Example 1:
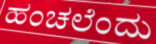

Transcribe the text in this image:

ಹಂಚಲೆಂದು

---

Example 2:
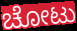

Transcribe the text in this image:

ಚೋಟು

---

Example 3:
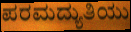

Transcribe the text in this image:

ಪರಮದ್ಯುತಿಯು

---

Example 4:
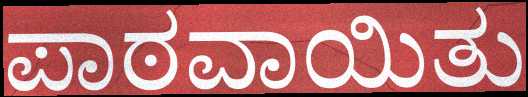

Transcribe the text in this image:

ಪಾಠವಾಯಿತು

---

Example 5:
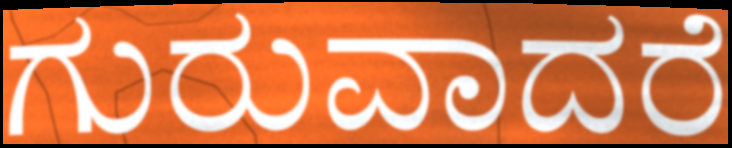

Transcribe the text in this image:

ಗುರುವಾದರೆ